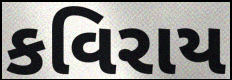
કવિરાય